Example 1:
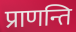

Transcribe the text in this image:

प्राणन्ति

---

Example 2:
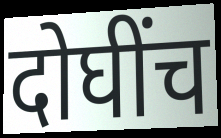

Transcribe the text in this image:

दोघींच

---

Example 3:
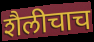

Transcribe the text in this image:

शैलीचाच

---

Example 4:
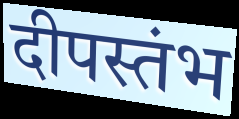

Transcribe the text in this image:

दीपस्तंभ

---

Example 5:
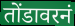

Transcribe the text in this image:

तोंडावरनं